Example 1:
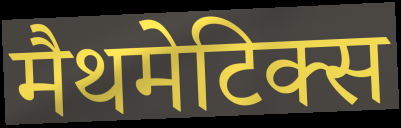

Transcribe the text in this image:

मैथमेटिक्स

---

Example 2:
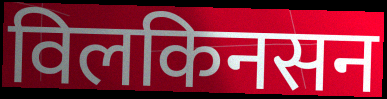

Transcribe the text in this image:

विलकिनसन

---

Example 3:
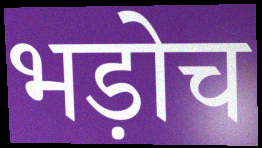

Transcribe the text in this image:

भड़ोच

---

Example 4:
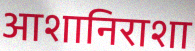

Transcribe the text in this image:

आशानिराशा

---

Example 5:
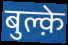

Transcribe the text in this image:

बुल्क़े